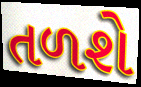
તળશે